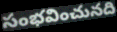
సంభవించునది